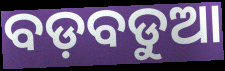
ବଡ଼ବଡୁଆ